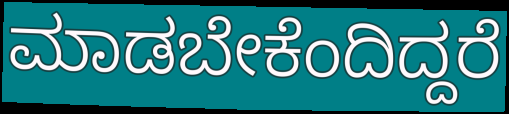
ಮಾಡಬೇಕೆಂದಿದ್ದರೆ